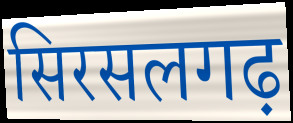
सिरसलगढ़